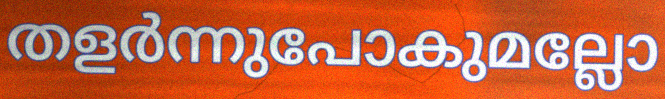
തളർന്നുപോകുമല്ലോ